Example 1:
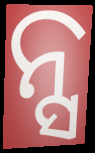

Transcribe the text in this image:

ନ୍ସ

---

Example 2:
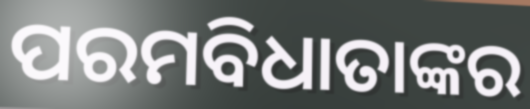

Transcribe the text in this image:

ପରମବିଧାତାଙ୍କର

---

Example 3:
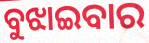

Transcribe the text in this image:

ବୁଝାଇବାର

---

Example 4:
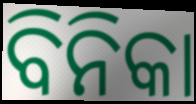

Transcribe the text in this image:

ବିନିକା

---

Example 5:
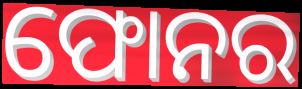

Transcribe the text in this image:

ଫୋନର